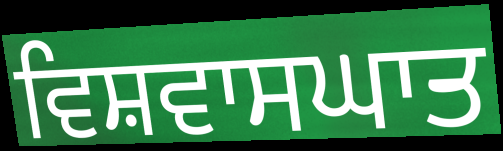
ਵਿਸ਼ਵਾਸਘਾਤ